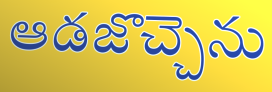
ఆడజొచ్చెను